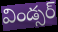
విండ్సర్